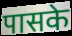
पासके